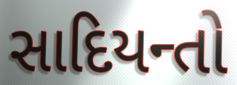
સાદિયન્તો